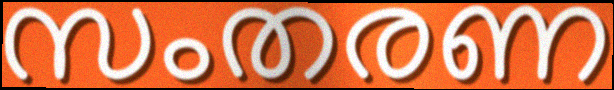
സംതരണ